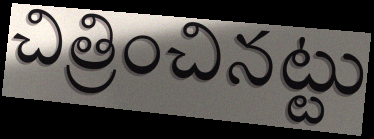
చిత్రించినట్టు